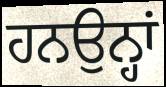
ਹਨਉਨ੍ਹਾਂ